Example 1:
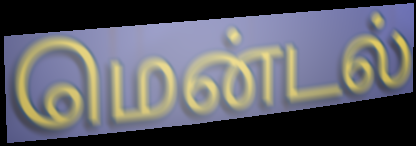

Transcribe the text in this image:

மென்டல்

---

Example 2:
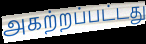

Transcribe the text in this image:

அகற்றப்பட்டது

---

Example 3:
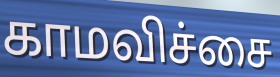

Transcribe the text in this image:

காமவிச்சை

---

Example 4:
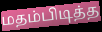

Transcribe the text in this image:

மதம்பிடித்த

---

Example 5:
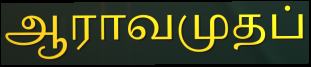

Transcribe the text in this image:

ஆராவமுதப்